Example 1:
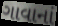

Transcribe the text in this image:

ગાવાનાં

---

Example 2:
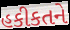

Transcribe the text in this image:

હકીકતને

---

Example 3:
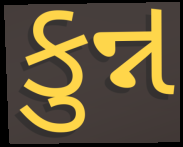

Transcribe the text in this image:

કુન્ન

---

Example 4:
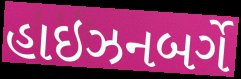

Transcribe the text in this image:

હાઇઝનબર્ગે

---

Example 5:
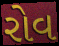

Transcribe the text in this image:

રોવ